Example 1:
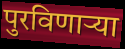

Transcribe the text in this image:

पुरविणार्‍या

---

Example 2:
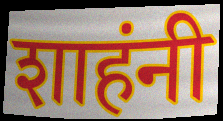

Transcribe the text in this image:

शाहंनी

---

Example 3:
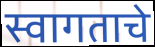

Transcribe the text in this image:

स्वागताचे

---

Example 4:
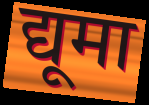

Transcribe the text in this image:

द्यूमा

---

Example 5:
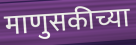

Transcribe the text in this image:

माणुसकीच्या